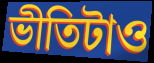
ভীতিটাও